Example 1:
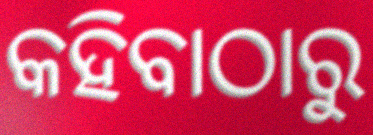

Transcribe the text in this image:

କହିବାଠାରୁ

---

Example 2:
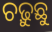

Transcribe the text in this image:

ଚଢ଼ୁଛୁ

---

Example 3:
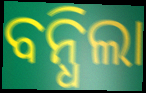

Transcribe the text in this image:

ବନ୍ଧିଲା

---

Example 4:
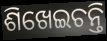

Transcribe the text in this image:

ଶିଖେଇଚନ୍ତି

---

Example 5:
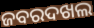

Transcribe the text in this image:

ଜବରଦଖଲ